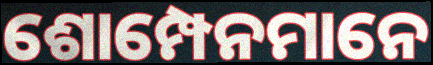
ଶୋମ୍ପେନମାନେ